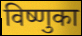
विष्णुका